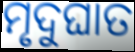
ମୃଦୁଘାତ